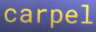
carpel